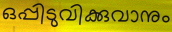
ഒപ്പിടുവിക്കുവാനും